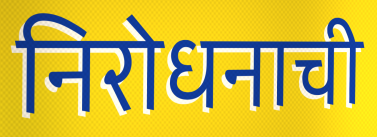
निरोधनाची